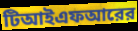
টিআইএফআরের